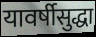
यावर्षीसुद्धा